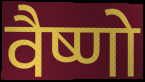
वैष्णो